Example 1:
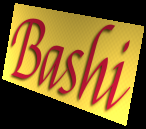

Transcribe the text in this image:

Bashi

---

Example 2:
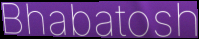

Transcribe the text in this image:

Bhabatosh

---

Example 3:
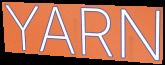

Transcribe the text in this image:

YARN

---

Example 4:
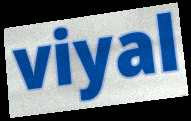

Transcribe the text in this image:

viyal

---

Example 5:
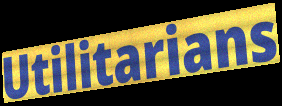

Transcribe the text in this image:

Utilitarians